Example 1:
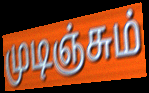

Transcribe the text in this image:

முடிஞ்சும்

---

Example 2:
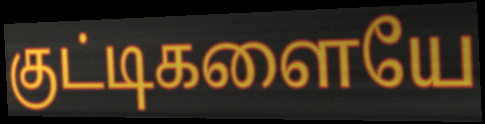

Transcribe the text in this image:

குட்டிகளையே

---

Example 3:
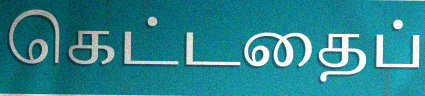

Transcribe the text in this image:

கெட்டதைப்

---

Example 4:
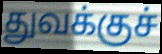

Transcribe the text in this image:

துவக்குச்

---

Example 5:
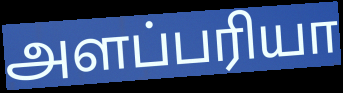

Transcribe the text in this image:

அளப்பரியா